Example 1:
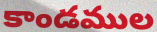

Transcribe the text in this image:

కాండముల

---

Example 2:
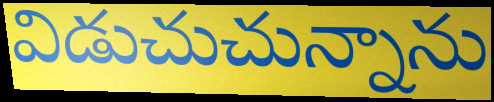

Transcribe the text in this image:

విడుచుచున్నాను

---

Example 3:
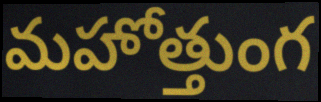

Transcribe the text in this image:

మహోత్తుంగ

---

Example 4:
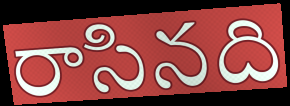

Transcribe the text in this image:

రాసినది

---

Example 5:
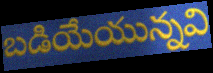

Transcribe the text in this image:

బడియేయున్నవి